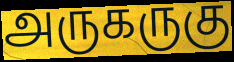
அருகருகு